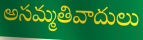
అసమ్మతివాదులు